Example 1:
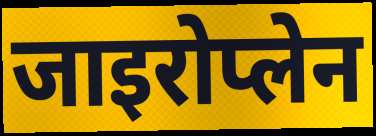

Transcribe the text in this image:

जाइरोप्लेन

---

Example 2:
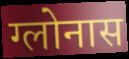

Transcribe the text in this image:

ग्लोनास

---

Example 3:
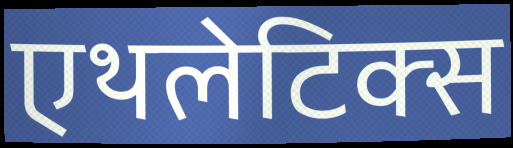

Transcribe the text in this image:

एथलेटिक्‍स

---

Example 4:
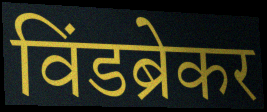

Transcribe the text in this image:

विंडब्रेकर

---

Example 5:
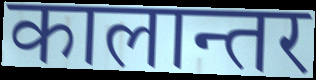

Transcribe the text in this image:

कालान्तर